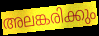
അലങ്കരിക്കും